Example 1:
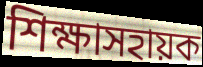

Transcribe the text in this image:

শিক্ষাসহায়ক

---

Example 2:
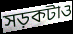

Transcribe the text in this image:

সড়কটাও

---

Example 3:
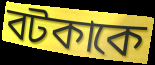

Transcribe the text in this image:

বটকাকে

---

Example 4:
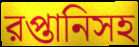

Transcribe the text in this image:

রপ্তানিসহ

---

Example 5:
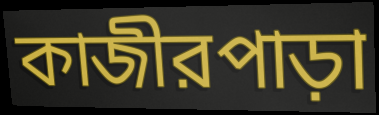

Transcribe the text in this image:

কাজীরপাড়া